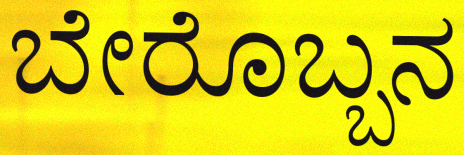
ಬೇರೊಬ್ಬನ